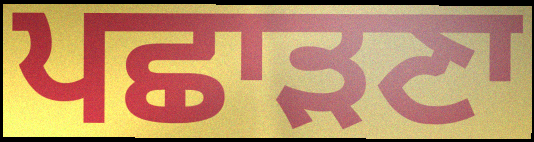
ਪਛਾੜਣਾ